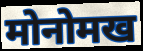
मोनोमख